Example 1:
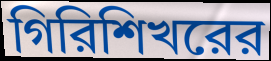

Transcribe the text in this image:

গিরিশিখরের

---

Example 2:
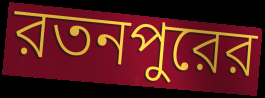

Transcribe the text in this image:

রতনপুরের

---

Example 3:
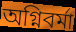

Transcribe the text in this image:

অগ্নিবর্মা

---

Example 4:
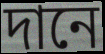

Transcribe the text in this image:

দানে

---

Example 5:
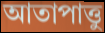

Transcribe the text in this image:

আতাপাত্তু